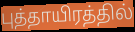
புத்தாயிரத்தில்